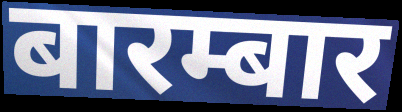
बारम्बार